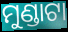
ମୁଣ୍ଡାଟା